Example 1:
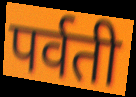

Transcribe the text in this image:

पर्वती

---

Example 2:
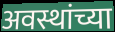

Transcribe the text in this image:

अवस्थांच्या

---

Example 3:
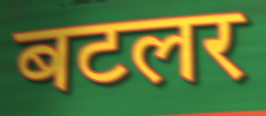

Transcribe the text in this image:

बटलर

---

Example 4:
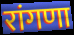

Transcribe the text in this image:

रांगणा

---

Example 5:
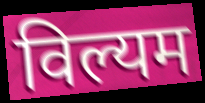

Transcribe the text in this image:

विल्यम